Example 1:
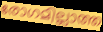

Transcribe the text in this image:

രോഗമില്ലാത്ത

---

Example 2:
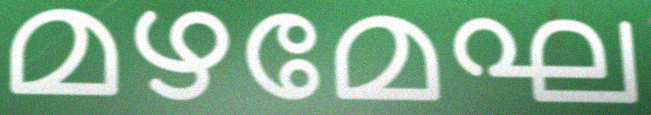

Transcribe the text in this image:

മഴമേഘ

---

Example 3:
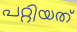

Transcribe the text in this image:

പറ്റിയത്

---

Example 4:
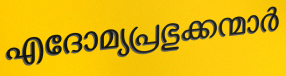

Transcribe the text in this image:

എദോമ്യപ്രഭുക്കന്മാർ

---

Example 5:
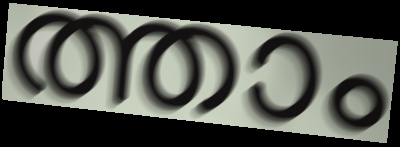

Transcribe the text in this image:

ത്താം